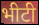
भीटी